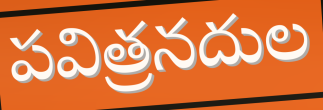
పవిత్రనదుల